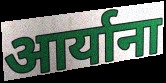
आर्याना